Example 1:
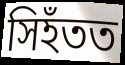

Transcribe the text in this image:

সিহঁতত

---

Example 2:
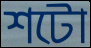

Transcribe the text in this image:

শটো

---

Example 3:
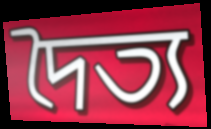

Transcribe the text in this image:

দৈত্য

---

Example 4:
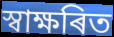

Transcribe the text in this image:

স্বাক্ষৰিত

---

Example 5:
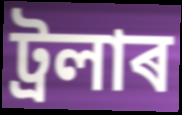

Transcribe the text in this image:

ট্ৰলাৰ